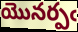
యొనర్పఁ